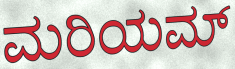
ಮರಿಯಮ್